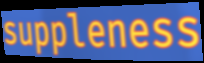
suppleness